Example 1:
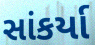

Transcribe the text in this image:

સાંકર્યા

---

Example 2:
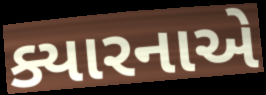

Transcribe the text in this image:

ક્યારનાએ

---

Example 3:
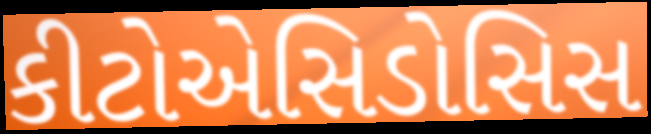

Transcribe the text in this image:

કીટોએસિડોસિસ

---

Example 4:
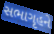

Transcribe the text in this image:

સભાગૃહને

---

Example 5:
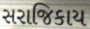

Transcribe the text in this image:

સરાજિકાય